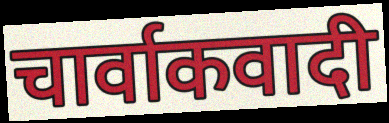
चार्वाकवादी